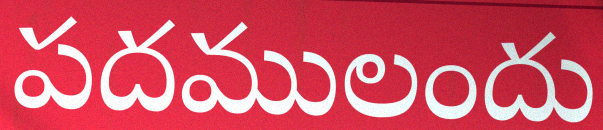
పదములందు